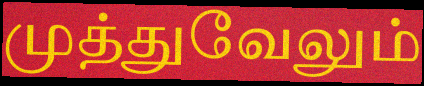
முத்துவேலும்